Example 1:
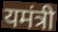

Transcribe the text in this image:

यमंत्री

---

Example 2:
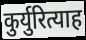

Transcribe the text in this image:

कुर्युरित्याह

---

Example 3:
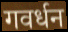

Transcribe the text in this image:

गवर्धन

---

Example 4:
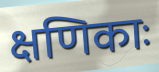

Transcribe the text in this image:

क्षणिकाः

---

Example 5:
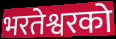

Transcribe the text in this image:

भरतेश्वरको